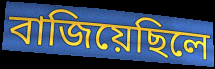
বাজিয়েছিলে